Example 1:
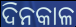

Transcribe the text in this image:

ଦିନକାଳ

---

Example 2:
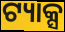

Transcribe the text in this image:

ଟ୍ୟାକ୍ସ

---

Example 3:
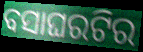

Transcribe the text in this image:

ବସାଘରଟିର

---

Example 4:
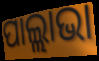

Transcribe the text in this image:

ପାଲ୍ଲାଭା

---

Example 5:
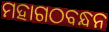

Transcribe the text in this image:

ମହାଗଠବନ୍ଧନ